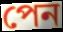
পেন